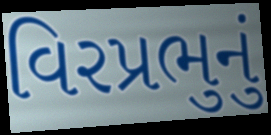
વિરપ્રભુનું